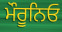
ਮੌਰੂਨਿਓ